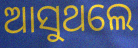
ଆସୁଥଲେ